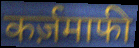
कर्ज़माफी